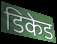
डिकेड